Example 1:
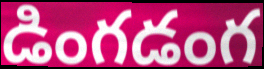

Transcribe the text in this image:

డింగడంగ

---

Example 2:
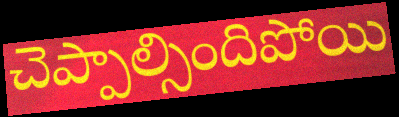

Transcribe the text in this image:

చెప్పాల్సిందిపోయి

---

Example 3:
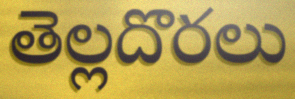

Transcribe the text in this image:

తెల్లదొరలు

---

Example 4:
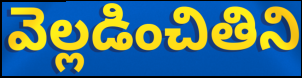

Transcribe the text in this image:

వెల్లడించితిని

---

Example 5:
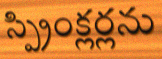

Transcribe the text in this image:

స్ప్రింక్లర్లను